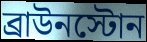
ব্রাউনস্টোন